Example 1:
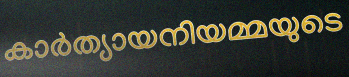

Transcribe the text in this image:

കാർത്യായനിയമ്മയുടെ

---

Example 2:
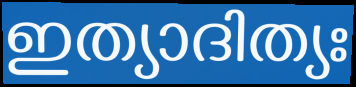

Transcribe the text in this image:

ഇത്യാദിത്യഃ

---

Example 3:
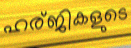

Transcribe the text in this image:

ഹര്ജികളുടെ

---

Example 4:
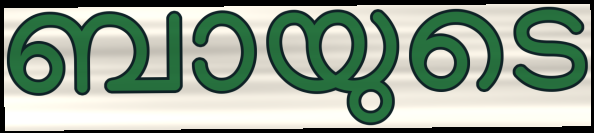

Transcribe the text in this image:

ബായുടെ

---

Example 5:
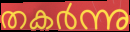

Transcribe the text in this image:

തകർന്നു